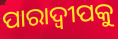
ପାରାଦ୍ୱୀପକୁ